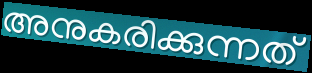
അനുകരിക്കുന്നത്